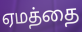
ஏமத்தை